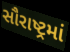
સૌરાષ્ટ્રમાં